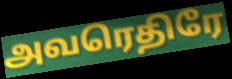
அவரெதிரே